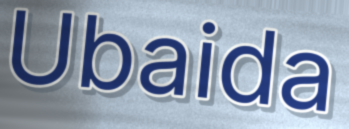
Ubaida